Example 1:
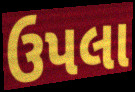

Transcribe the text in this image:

ઉપલા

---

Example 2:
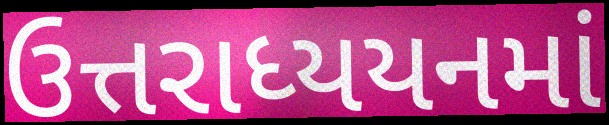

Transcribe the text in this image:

ઉત્તરાધ્યયનમાં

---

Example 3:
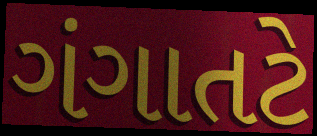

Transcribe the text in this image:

ગંગાતટે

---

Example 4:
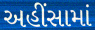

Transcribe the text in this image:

અહીંસામાં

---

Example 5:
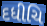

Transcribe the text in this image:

દધીચિ